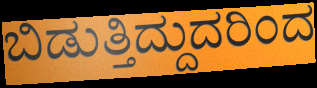
ಬಿಡುತ್ತಿದ್ದುದರಿಂದ